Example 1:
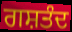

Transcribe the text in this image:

ਗਸ਼ਤੰਦ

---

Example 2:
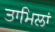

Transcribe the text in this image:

ਤਾਮਿਲਾਂ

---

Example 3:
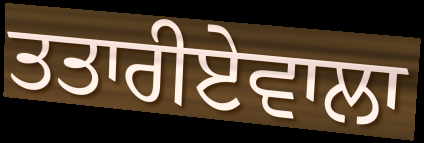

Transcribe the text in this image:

ਤਤਾਰੀਏਵਾਲਾ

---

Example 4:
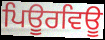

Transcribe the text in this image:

ਪਿਊਰਵਿਊ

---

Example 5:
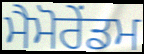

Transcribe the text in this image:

ਮੈਮੋਰੇਂਡਮ